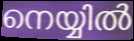
നെയ്യിൽ